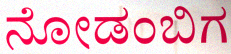
ನೋಡಂಬಿಗ